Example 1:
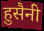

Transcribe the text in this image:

हुसैनी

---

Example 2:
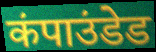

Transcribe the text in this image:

कंपाउंडेड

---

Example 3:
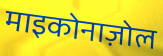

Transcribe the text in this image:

माइकोनाज़ोल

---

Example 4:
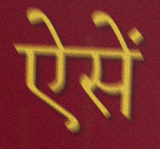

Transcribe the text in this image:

ऐसें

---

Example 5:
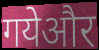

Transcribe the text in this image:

गयेऔर